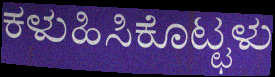
ಕಳುಹಿಸಿಕೊಟ್ಟಳು